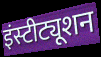
इंस्‍टीट्यूशन